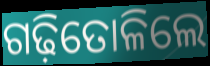
ଗଢ଼ିତୋଳିଲେ